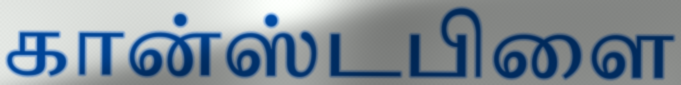
கான்ஸ்டபிளை